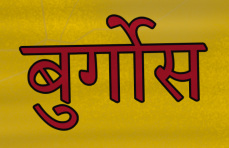
बुर्गोस